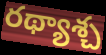
రథ్యాశ్చ